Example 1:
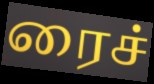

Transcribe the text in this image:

ரைச்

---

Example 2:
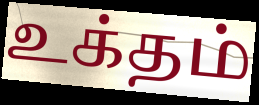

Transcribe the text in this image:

உக்தம்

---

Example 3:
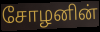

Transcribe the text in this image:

சோழனின்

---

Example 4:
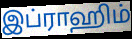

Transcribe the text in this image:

இப்ராஹிம்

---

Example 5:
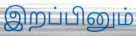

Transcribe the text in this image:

இறப்பினும்